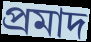
প্রমাদ